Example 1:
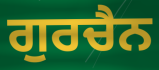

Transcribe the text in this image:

ਗੁਰਚੈਨ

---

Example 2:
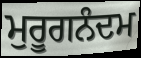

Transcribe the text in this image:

ਮੁਰੂਗਨੰਦਮ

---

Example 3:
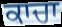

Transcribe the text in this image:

ਕਾਚਾ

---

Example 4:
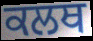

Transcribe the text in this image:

ਕਲਥ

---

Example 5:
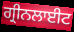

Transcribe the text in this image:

ਗ੍ਰੀਨਲਾਈਟ